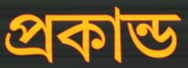
প্রকান্ড